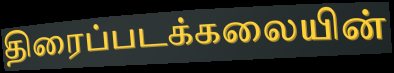
திரைப்படக்கலையின்